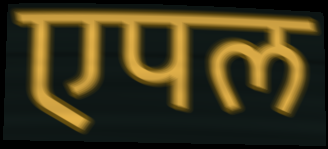
एपल